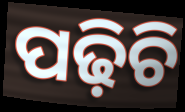
ପଢ଼ିଚି